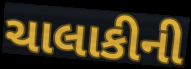
ચાલાકીની